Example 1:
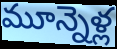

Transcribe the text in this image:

మూన్నెళ్ల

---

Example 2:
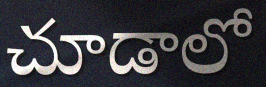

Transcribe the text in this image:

చూడాలో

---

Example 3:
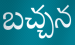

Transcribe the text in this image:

బచ్చన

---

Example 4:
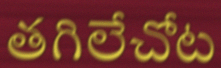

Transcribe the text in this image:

తగిలేచోట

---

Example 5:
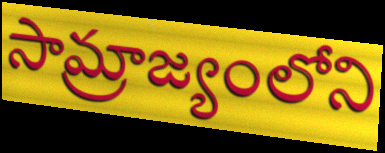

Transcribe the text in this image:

సామ్రాజ్యంలోని